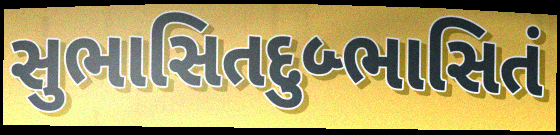
સુભાસિતદુબ્ભાસિતં